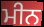
ਮੀਨ